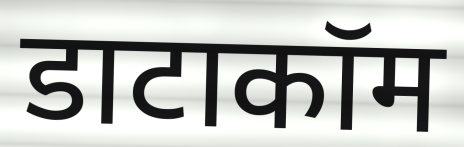
डाटाकॉम